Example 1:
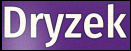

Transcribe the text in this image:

Dryzek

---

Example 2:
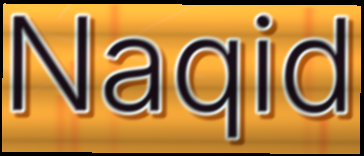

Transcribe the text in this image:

Naqid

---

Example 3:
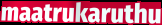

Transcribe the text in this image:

maatrukaruthu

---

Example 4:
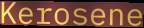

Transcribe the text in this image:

Kerosene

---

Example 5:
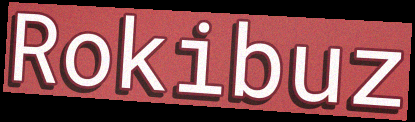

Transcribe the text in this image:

Rokibuz